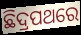
ଛିଦ୍ରପଥରେ